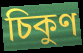
চিকুণ